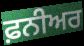
ਫ਼ਨੀਅਰ